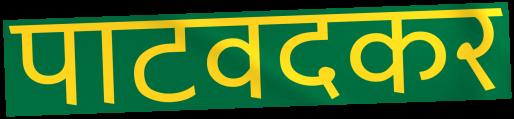
पाटवदकर